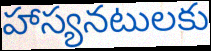
హాస్యనటులకు